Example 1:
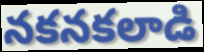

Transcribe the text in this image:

నకనకలాడి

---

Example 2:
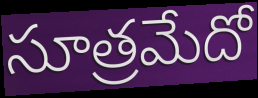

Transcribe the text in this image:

సూత్రమేదో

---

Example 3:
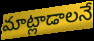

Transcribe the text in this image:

మాట్లాడాలనే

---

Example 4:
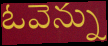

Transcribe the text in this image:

ఓవెన్ను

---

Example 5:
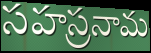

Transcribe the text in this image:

సహస్రనామ